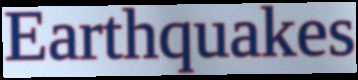
Earthquakes